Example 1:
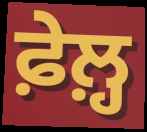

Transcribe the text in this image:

ਫ਼ੇਲ਼੍ਹ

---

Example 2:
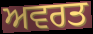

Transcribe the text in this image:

ਅਵਰਤ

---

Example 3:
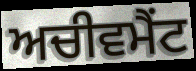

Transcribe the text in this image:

ਅਚੀਵਮੈਂਟ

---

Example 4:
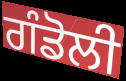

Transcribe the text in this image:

ਗੰਡੋਲੀ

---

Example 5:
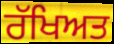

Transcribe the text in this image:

ਰੱਖਿਅਤ